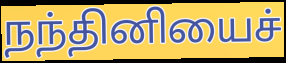
நந்தினியைச்